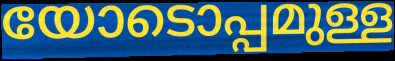
യോടൊപ്പമുള്ള